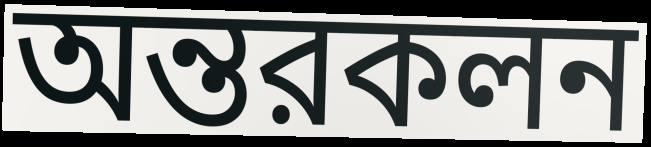
অন্তরকলন